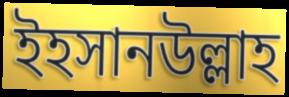
ইহসানউল্লাহ